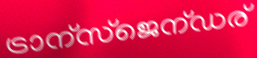
ട്രാന്സ്ജെന്ഡര്